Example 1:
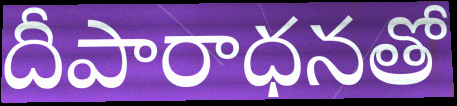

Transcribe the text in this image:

దీపారాధనతో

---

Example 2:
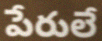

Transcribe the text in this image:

పేరులే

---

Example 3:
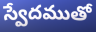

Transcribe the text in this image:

స్వేదముతో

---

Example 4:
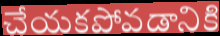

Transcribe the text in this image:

చేయకపోవడానికి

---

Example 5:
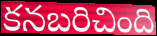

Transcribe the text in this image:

కనబరిచింది